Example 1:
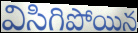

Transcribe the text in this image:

విసిగిపోయిన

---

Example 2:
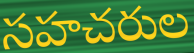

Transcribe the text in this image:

సహచరుల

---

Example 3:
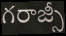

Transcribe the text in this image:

గరాజ్సీ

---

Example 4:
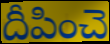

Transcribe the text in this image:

దీపించె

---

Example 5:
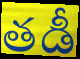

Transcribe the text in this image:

తడీ